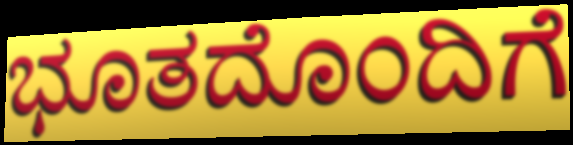
ಭೂತದೊಂದಿಗೆ